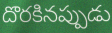
దొరకినప్పుడు